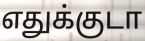
எதுக்குடா